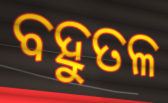
ବହୁତଳ